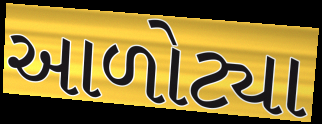
આળોટ્યા